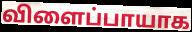
விளைப்பாயாக